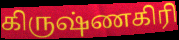
கிருஷ்ணகிரி